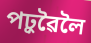
পঢ়ুৱৈলৈ